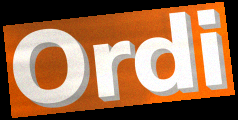
Ordi